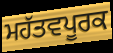
ਮਹੱਤਵਪੂਰਕ